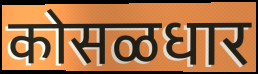
कोसळधार